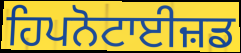
ਹਿਪਨੋਟਾਈਜ਼ਡ